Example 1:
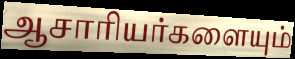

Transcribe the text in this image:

ஆசாரியர்களையும்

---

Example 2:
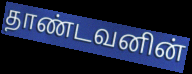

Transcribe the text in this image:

தாண்டவனின்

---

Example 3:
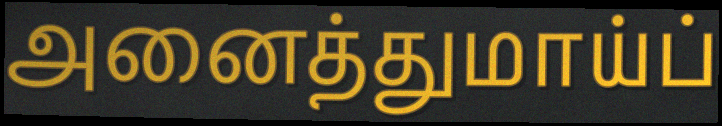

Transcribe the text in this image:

அனைத்துமாய்ப்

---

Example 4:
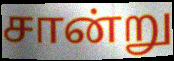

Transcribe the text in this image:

சான்று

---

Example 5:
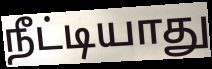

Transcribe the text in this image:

நீட்டியாது